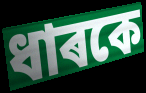
ধাৰকে